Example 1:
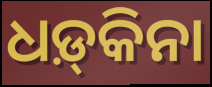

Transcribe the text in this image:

ଧଡ଼୍‍କିନା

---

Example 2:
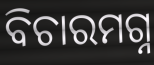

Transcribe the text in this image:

ବିଚାରମଗ୍ନ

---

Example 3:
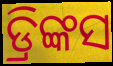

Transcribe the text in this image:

ଡ୍ରିଙ୍କସ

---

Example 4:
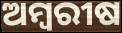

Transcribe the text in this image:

ଅମ୍ବରୀଷ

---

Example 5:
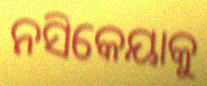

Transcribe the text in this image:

ନସିକେୟାକୁ